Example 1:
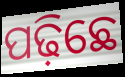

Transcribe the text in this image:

ପଢ଼ିଛେ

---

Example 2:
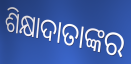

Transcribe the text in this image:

ଶିକ୍ଷାଦାତାଙ୍କର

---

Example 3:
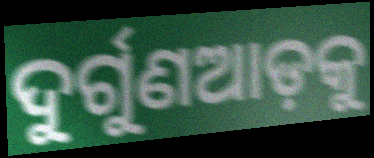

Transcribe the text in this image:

ଦୁର୍ଗୁଣଆଡ଼କୁ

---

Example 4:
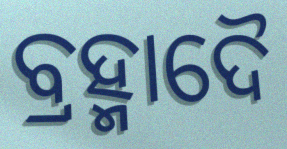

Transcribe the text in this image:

ବ୍ରହ୍ମାଦୈ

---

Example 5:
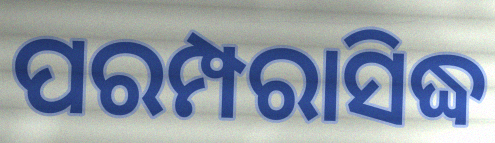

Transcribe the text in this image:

ପରମ୍ପରାସିଦ୍ଧ